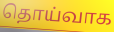
தொய்வாக